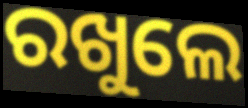
ରଖୁଲେ